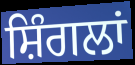
ਸ਼ਿੰਗਲਾਂ